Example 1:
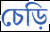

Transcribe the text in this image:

চেড়ি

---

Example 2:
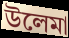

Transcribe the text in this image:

উলেমা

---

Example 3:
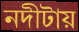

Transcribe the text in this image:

নদীটায়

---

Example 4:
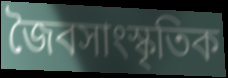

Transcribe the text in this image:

জৈবসাংস্কৃতিক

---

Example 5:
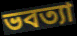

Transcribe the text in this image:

ভবত্যা